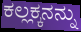
ಕಲ್ಲಕ್ಕನನ್ನು